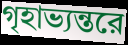
গৃহাভ্যন্তরে